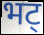
भट्